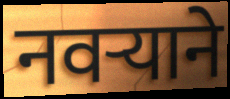
नवर्‍याने